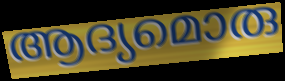
ആദ്യമൊരു